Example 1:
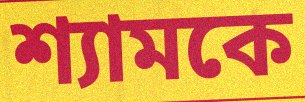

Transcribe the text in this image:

শ্যামকে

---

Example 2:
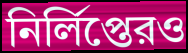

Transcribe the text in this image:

নির্লিপ্তেরও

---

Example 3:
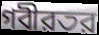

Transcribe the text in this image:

গবীরতর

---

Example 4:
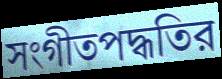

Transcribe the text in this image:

সংগীতপদ্ধতির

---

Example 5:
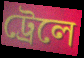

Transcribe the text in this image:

ট্রেলে